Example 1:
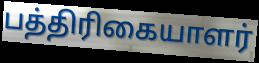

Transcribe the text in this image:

பத்திரிகையாளர்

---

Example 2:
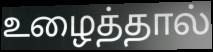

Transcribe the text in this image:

உழைத்தால்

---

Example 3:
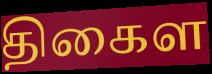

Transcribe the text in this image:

திகைள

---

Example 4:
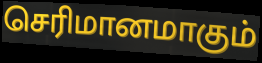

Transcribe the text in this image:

செரிமானமாகும்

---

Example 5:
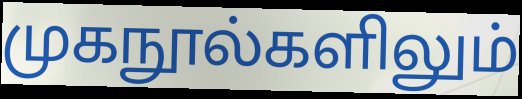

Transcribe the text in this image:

முகநூல்களிலும்